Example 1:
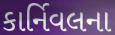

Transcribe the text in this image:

કાર્નિવલના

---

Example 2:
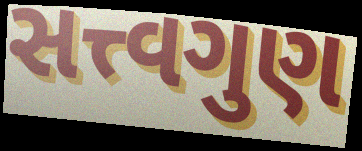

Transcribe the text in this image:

સત્ત્વગુણ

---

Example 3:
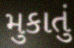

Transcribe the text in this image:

મુકાતું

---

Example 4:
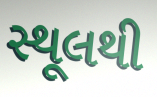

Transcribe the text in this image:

સ્થૂલથી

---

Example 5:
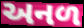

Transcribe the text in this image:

અનળ